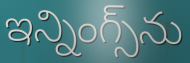
ఇన్నింగ్స్‌ను